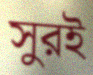
সুরই